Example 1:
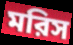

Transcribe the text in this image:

মরিস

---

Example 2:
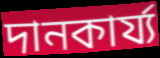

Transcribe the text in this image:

দানকার্য্য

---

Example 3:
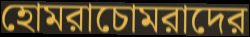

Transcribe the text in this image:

হোমরাচোমরাদের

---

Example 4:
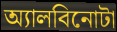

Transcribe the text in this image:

অ্যালবিনোটা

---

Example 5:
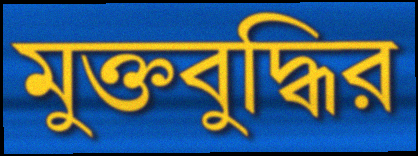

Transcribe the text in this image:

মুক্তবুদ্ধির